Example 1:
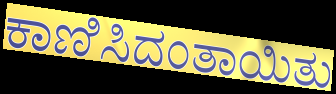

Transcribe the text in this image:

ಕಾಣಿಸಿದಂತಾಯಿತು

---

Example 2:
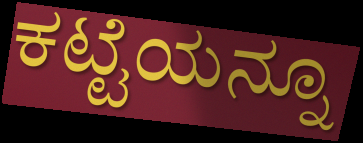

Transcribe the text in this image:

ಕಟ್ಟೆಯನ್ನೂ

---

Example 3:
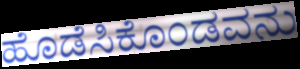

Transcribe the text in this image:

ಹೊಡೆಸಿಕೊಂಡವನು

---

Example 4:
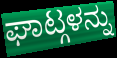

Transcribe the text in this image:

ಘಾಟ್ಗಳನ್ನು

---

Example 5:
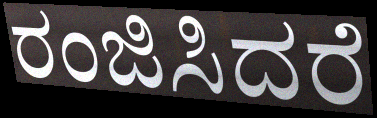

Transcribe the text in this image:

ರಂಜಿಸಿದರೆ